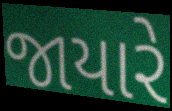
જાયારે